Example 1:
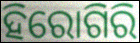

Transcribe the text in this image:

ହିରୋଗିରି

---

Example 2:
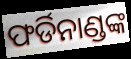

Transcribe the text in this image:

ଫର୍ଡିନାଣ୍ଡଙ୍କ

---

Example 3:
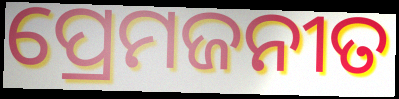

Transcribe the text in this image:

ପ୍ରେମଜନୀତ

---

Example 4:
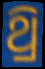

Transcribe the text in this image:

ଥ୍ରି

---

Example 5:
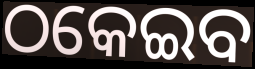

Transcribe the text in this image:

ଠକେଇବ